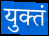
युक्तं